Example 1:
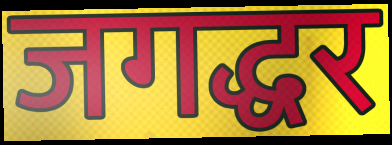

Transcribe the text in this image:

जगद्धर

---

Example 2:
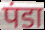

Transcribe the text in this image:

पंडा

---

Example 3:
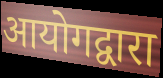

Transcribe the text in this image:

आयोगद्वारा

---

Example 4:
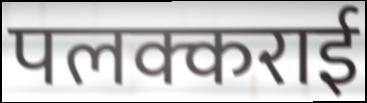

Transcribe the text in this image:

पलक्कराई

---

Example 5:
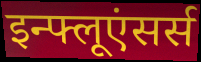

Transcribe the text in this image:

इन्फ्लूएंसर्स